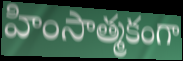
హింసాత్మకంగా